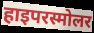
हाइपरस्मोलर